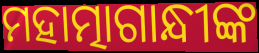
ମହାତ୍ମାଗାନ୍ଧୀଙ୍କ